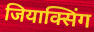
जियाक्सिंग